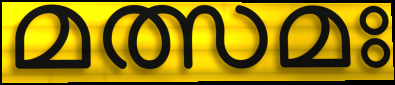
മത്സമഃ